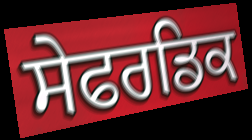
ਸੇਫਰਡਿਕ